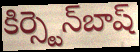
కిర్స్టెన్‌బాష్